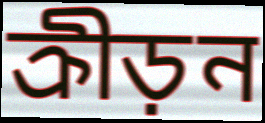
ক্রীড়ন